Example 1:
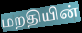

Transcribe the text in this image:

மறதியின்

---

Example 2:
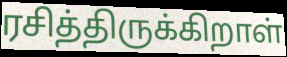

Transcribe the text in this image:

ரசித்திருக்கிறாள்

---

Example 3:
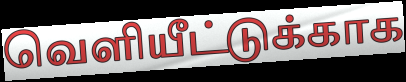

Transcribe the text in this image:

வெளியீட்டுக்காக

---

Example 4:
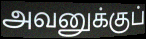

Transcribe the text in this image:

அவனுக்குப்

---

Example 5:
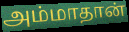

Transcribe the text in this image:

அம்மாதான்